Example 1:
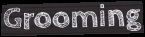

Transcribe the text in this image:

Grooming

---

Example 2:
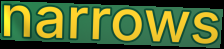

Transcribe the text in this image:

narrows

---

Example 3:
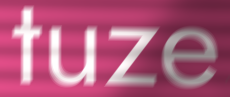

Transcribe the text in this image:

tuze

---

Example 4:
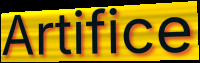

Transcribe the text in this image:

Artifice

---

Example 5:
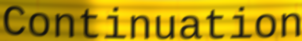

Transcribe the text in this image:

Continuation